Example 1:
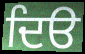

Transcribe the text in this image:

ਦਿੳ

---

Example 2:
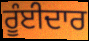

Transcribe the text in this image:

ਰੂੰਈਦਾਰ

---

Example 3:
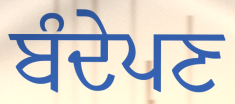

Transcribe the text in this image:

ਬੰਦੇਪਣ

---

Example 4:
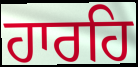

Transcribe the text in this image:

ਹਾਰਹਿ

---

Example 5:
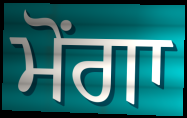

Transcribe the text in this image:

ਮੋਂਗਾ